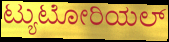
ಟ್ಯುಟೋರಿಯಲ್